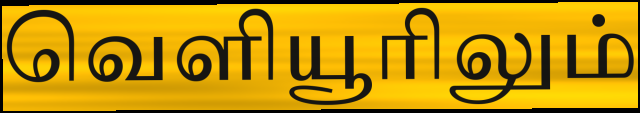
வெளியூரிலும்